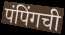
पंपिंगची